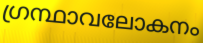
ഗ്രന്ഥാവലോകനം